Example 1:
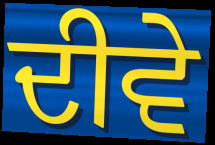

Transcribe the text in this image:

ਦੀਵੇ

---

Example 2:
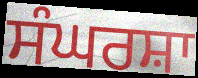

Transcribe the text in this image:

ਸੰਘਰਸ਼ਾ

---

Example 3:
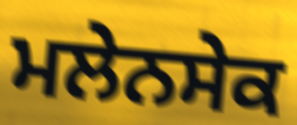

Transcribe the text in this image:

ਮਲੇਨਸੇਕ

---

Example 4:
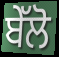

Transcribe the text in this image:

ਬੇੱਲੋ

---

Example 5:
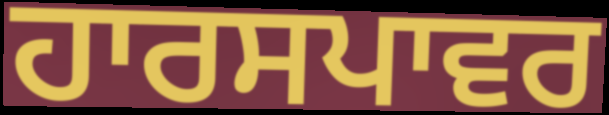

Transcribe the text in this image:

ਹਾਰਸਪਾਵਰ